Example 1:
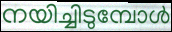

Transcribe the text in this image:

നയിച്ചിടുമ്പോൾ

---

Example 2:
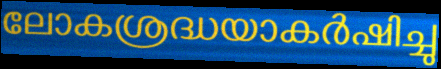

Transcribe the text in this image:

ലോകശ്രദ്ധയാകർഷിച്ചു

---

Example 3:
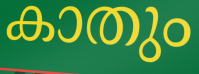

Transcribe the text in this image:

കാതും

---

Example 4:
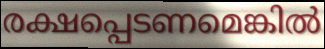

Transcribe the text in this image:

രക്ഷപ്പെടണമെങ്കിൽ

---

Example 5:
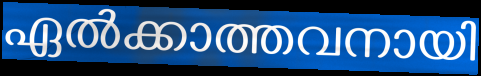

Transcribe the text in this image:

ഏൽക്കാത്തവനായി